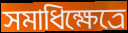
সমাধিক্ষেত্রে